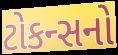
ટોકન્સનો